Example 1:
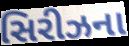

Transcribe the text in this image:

સિરીઝના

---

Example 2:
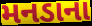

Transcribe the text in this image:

મનડાના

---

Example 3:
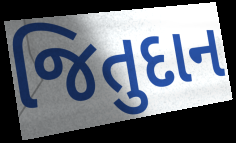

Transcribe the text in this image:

જિતુદાન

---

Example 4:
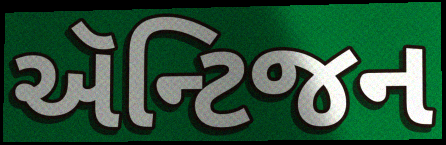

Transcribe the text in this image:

ઍન્ટિજન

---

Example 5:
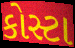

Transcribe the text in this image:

કોસ્ટા